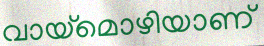
വായ്മൊഴിയാണ്